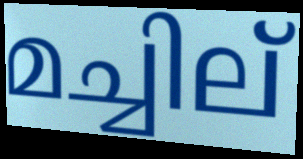
മച്ചില്